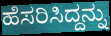
ಹೆಸರಿಸಿದ್ದನ್ನು